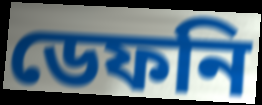
ডেফনি